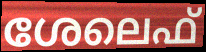
ശേലെഫ്